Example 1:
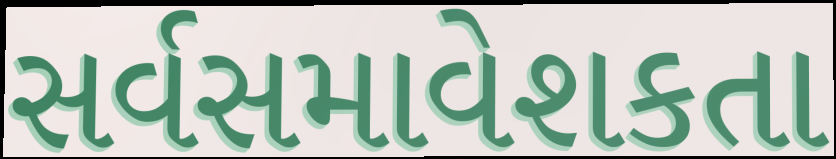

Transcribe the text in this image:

સર્વસમાવેશકતા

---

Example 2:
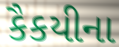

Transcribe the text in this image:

કૈકયીના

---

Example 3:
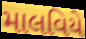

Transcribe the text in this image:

માલવિયે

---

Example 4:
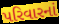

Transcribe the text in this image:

પરિવારનાં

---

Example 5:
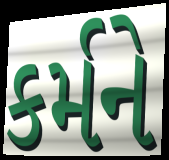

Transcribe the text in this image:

કર્મને